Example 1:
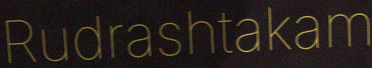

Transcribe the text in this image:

Rudrashtakam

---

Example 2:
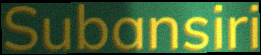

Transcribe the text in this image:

Subansiri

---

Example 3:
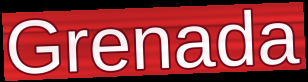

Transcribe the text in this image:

Grenada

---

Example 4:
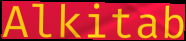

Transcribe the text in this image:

Alkitab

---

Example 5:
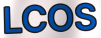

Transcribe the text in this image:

LCOS